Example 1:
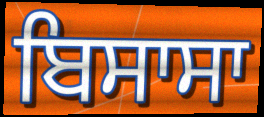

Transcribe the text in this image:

ਬਿਸਾਸਾ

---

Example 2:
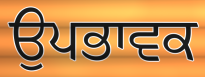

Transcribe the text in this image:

ਉਪਭਾਵਕ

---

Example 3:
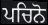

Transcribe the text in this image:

ਪਚਿਨੋ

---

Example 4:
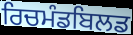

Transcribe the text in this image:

ਰਿਚਮੰਡਬਿਲਡ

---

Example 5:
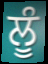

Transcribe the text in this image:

ਲੂੰ